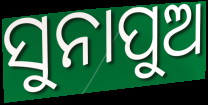
ସୁନାପୁଅ